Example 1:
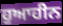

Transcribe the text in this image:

ਹੁਆਹੀਨ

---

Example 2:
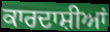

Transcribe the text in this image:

ਕਾਰਦਾਸ਼ੀਆਂ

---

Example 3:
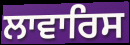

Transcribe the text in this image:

ਲਾਵਾਰਿਸ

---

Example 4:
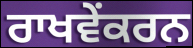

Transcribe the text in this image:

ਰਾਖਵੇਂਕਰਨ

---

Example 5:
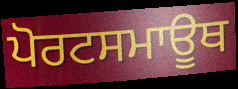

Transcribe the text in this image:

ਪੋਰਟਸਮਾਊਥ